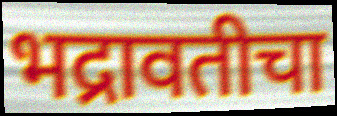
भद्रावतीचा